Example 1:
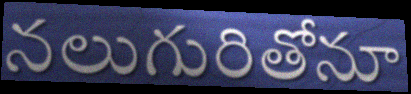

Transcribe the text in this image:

నలుగురితోనూ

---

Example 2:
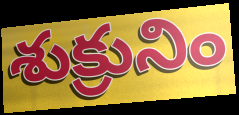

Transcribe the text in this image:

శుక్రునిం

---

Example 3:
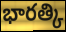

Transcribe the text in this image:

భారత్కి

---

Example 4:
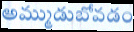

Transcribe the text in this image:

అమ్ముడుబోవడం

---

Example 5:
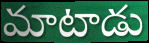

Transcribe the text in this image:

మాటాడు